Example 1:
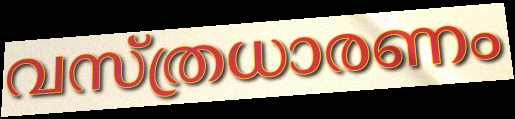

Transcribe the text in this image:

വസ്ത്രധാരണം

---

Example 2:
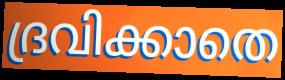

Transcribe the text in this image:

ദ്രവിക്കാതെ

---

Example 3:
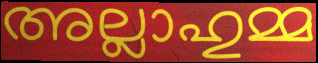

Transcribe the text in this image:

അല്ലാഹുമ്മ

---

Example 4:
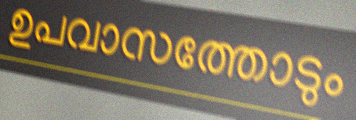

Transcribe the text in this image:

ഉപവാസത്തോടും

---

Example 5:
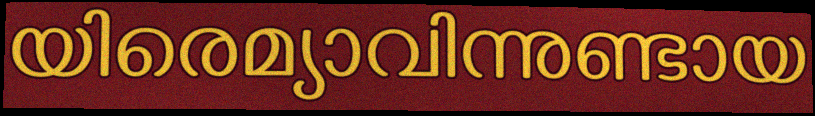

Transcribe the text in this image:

യിരെമ്യാവിന്നുണ്ടായ